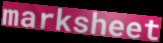
marksheet